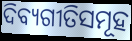
ଦିବ୍ୟଗୀତିସମୂହ